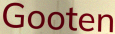
Gooten